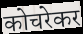
कोचरेकर